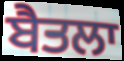
ਬੈਤਲਾ